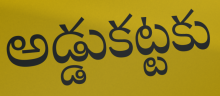
అడ్డుకట్టకు